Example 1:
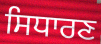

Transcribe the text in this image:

ਸਿਧਾਰਣ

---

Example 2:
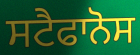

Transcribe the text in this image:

ਸਟੈਫਾਨੋਸ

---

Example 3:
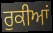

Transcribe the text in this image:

ਰੁਕੀਆਂ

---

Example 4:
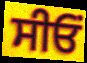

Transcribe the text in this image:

ਸੀਓਂ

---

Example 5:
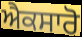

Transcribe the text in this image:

ਐਕਸਾਰੋ